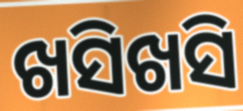
ଖସିଖସି